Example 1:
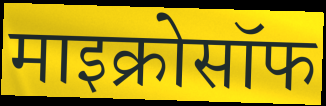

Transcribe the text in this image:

माइक्रोसॉफ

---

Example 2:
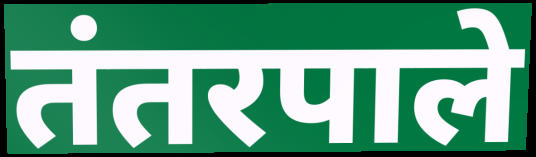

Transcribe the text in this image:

तंतरपाले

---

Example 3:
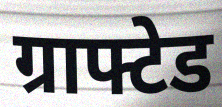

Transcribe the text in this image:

ग्राफ्टेड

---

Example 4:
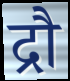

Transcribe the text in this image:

द्रौ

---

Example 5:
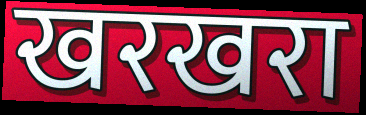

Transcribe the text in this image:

खरखरा